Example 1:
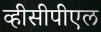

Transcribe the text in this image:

व्हीसीपीएल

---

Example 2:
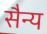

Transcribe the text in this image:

सैन्‍य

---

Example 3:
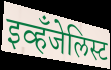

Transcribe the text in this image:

इव्हँजेलिस्ट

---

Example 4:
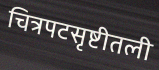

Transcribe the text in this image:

चित्रपटसृष्टीतली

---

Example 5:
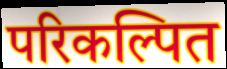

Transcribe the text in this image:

परिकल्पित